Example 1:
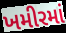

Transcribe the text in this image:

ખમીરમાં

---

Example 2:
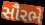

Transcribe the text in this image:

સૌરભે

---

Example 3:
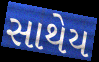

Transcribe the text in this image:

સાથેય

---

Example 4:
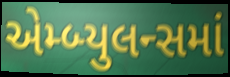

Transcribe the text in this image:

એમ્બ્યુલન્સમાં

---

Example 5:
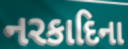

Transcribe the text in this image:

નરકાદિના